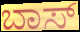
ಬಾಸ್